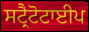
ਸਟ੍ਰੈਟੋਟਾਈਪ